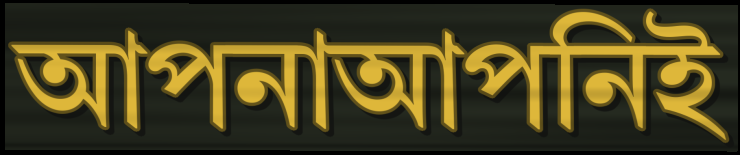
আপনাআপনিই